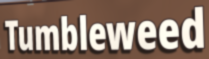
Tumbleweed